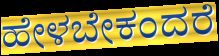
ಹೇಳಬೇಕಂದರೆ